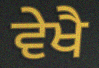
ਵੇਖੈ